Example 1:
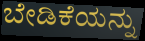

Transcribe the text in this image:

ಬೇಡಿಕೆಯನ್ನು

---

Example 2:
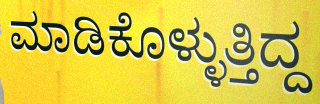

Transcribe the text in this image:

ಮಾಡಿಕೊಳ್ಳುತ್ತಿದ್ದ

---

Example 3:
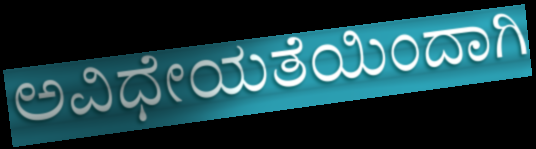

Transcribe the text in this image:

ಅವಿಧೇಯತೆಯಿಂದಾಗಿ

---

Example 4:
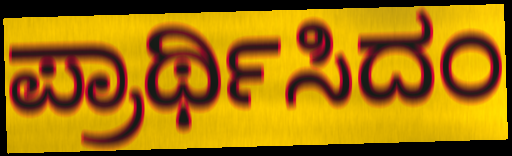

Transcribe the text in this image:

ಪ್ರಾರ್ಥಿಸಿದಂ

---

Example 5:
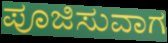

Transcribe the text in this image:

ಪೂಜಿಸುವಾಗ